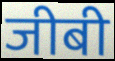
जीबी